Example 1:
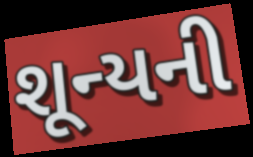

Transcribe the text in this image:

શૂન્યની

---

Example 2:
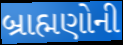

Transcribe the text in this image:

બ્રાહ્મણોની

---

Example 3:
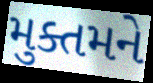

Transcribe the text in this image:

મુક્તમને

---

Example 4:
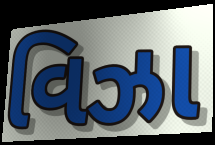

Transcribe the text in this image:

વિઝા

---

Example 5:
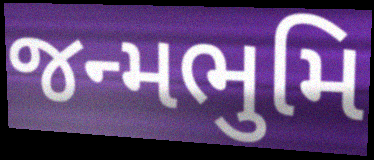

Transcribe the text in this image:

જન્મભુમિ